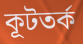
কূটতর্ক